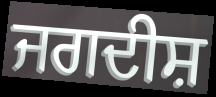
ਜਗਦੀਸ਼